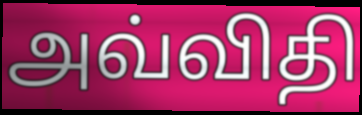
அவ்விதி